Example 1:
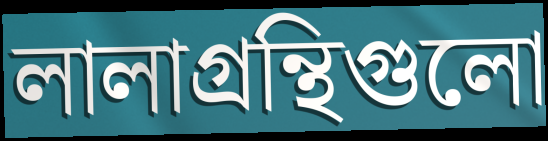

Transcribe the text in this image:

লালাগ্রন্থিগুলো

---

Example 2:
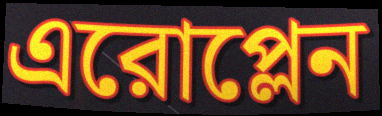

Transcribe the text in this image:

এরোপ্লেন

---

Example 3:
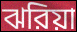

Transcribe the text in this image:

ঝরিয়া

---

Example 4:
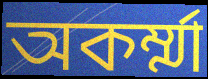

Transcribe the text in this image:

অকর্ম্মা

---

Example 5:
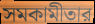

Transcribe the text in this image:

সমকামীতার